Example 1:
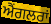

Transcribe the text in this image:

ਐਂਗਲਰਾਂ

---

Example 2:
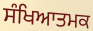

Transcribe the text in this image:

ਸੰਖਿਆਤਮਕ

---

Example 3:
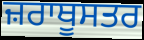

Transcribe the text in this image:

ਜ਼ਰਾਥੂਸਤਰ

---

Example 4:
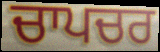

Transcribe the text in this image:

ਚਾਪਚਰ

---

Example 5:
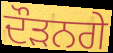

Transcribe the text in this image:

ਦੌੜਨਗੇ